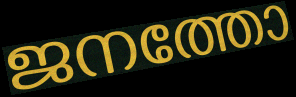
ജനത്തോ